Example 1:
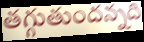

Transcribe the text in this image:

తగ్గుతుందన్నది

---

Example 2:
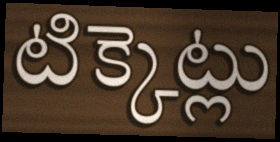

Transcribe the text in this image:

టిక్కెట్లు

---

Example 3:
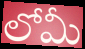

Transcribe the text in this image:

లోమీ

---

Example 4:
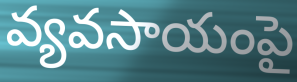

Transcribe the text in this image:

వ్యవసాయంపై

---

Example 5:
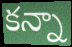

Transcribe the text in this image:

కన్నా